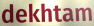
dekhtam